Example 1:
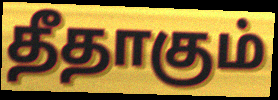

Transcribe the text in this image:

தீதாகும்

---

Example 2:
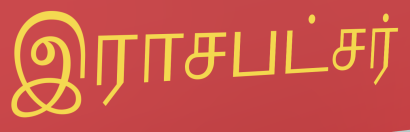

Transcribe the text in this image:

இராசபட்சர்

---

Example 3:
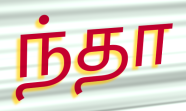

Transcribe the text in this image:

ந்தா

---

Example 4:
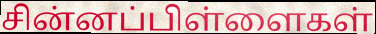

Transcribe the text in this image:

சின்னப்பிள்ளைகள்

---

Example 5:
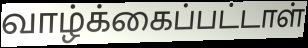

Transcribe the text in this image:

வாழ்க்கைப்பட்டாள்